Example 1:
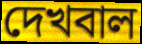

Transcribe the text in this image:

দেখবাল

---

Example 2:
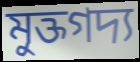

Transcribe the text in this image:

মুক্তগদ্য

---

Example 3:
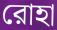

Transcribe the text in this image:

রোহা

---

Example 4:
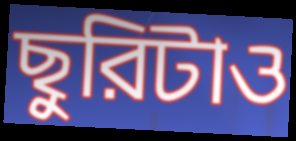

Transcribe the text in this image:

ছুরিটাও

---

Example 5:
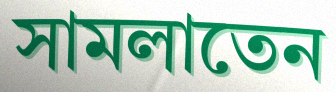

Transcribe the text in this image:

সামলাতেন